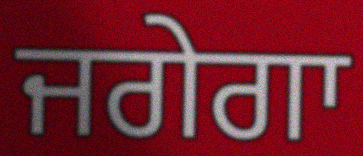
ਜਗੇਗਾ